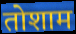
तोशाम